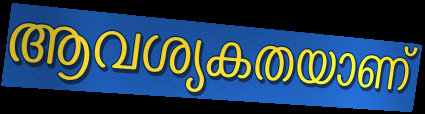
ആവശ്യകതയാണ്